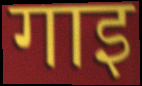
गाइ